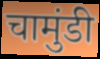
चामुंडी